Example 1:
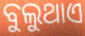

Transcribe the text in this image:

ବୁଲୁଥାଏ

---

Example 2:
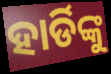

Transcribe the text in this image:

ହାର୍ଡିଙ୍କୁ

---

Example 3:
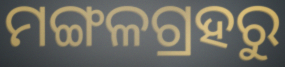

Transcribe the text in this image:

ମଙ୍ଗଳଗ୍ରହରୁ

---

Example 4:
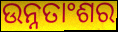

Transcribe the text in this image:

ଉନ୍ନତାଂଶର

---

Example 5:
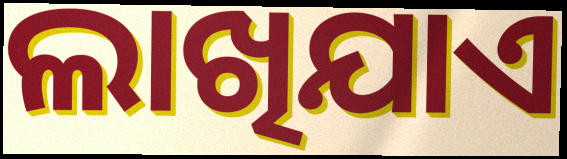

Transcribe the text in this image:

ଲାଖିଯାଏ